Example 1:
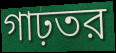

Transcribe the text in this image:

গাঢ়তর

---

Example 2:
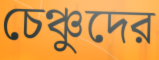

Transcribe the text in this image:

চেঞ্চুদের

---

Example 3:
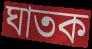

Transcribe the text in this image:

ঘাতক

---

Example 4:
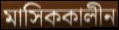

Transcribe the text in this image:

মাসিককালীন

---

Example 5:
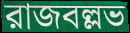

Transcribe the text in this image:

রাজবল্লভ